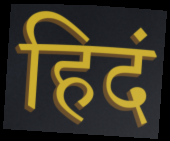
हिदं